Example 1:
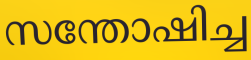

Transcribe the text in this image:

സന്തോഷിച്ച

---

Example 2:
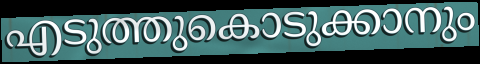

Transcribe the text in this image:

എടുത്തുകൊടുക്കാനും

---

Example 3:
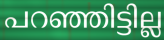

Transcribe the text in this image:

പറഞ്ഞിട്ടില്ല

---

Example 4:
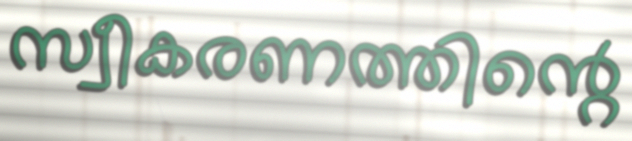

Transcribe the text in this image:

സ്വീകരണത്തിന്റെ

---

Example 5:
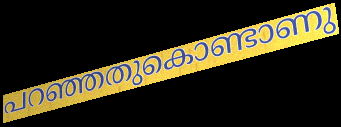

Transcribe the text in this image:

പറഞ്ഞതുകൊണ്ടാണു